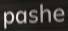
pashe